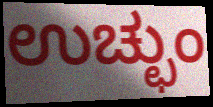
ಉಚ್ಛುಂ